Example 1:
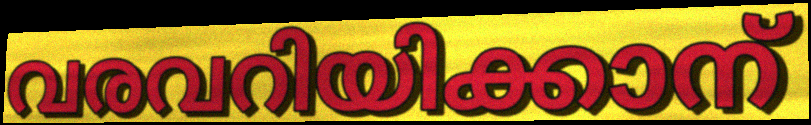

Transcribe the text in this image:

വരവറിയിക്കാന്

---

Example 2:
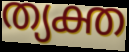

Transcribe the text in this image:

ത്യക്ത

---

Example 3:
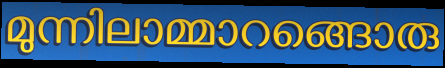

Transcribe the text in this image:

മുന്നിലാമ്മാറങ്ങൊരു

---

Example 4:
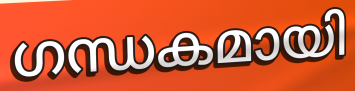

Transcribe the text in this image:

ഗന്ധകമായി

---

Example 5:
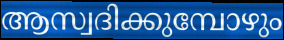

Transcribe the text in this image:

ആസ്വദിക്കുമ്പോഴും